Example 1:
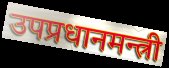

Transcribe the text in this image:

उपप्रधानमन्त्री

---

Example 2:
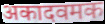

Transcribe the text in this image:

अकादवमक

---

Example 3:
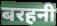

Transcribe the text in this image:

बरहनी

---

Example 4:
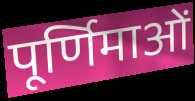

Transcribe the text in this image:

पूर्णिमाओं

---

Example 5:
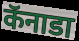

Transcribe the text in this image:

कॅनाडा